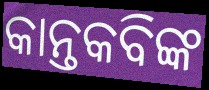
କାନ୍ତକବିଙ୍କ